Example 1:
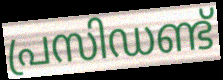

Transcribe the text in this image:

പ്രസിഡണ്ട്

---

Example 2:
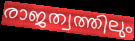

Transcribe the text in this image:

രാജത്വത്തിലും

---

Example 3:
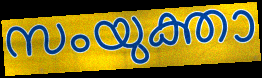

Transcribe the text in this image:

സംയുക്താ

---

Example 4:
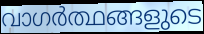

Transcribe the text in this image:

വാഗർത്ഥങ്ങളുടെ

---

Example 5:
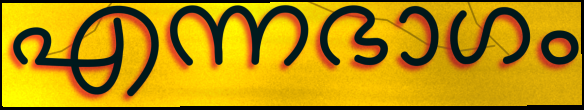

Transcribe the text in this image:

എന്നഭാഗം